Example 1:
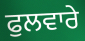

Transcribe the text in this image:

ਫੁਲਵਾਰੇ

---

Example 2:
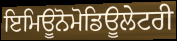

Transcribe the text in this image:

ਇਮਿਊਨੋਮੋਡਿਊਲੇਟਰੀ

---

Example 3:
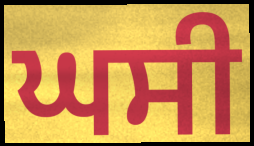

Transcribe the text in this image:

ਘਸੀ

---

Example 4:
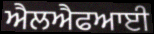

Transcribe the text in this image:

ਐਲਐਫਆਈ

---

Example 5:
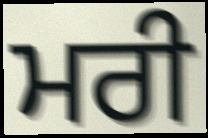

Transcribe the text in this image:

ਮਰੀ